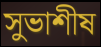
সুভাশীষ